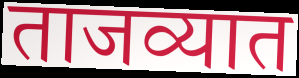
ताजव्यात